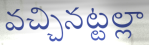
వచ్చినట్టల్లా